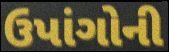
ઉપાંગોની